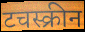
टचस्क्रीन